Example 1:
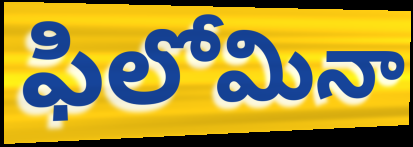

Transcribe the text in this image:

ఫిలోమినా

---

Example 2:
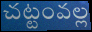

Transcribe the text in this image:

చట్టంవల్ల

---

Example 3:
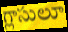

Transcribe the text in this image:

గ్లాసులూ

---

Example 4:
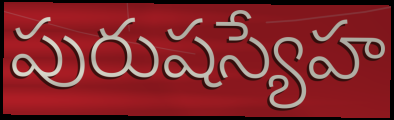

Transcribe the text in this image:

పురుషస్యేహ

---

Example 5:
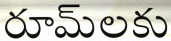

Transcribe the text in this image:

రూమ్‌లకు